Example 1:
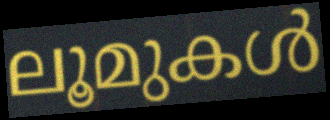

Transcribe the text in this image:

ലൂമുകൾ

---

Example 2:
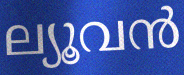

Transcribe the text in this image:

ല്യൂവൻ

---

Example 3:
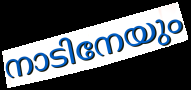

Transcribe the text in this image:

നാടിനേയും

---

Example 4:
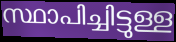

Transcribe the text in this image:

സ്ഥാപിച്ചിട്ടുള്ള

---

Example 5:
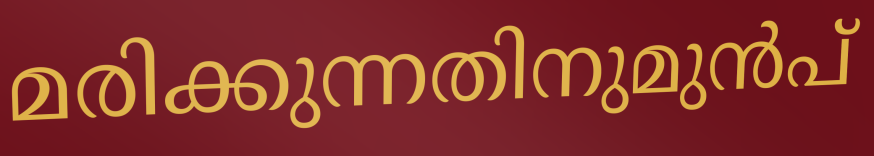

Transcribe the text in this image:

മരിക്കുന്നതിനുമുൻപ്